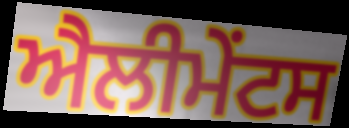
ਐਲੀਮੇੰਟਸ